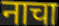
नाचा